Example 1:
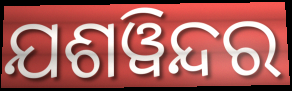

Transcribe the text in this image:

ଯଶୱିନ୍ଦର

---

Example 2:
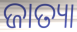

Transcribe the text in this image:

ଜାତ୍ୟା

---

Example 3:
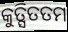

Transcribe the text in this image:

କୁତ୍ସିତତମ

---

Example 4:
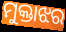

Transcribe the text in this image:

ମୁକ୍ତାଝର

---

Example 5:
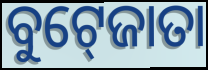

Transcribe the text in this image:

ବୁଟ୍‍ଜୋତା